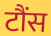
टौंस